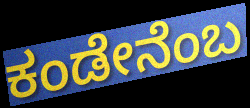
ಕಂಡೇನೆಂಬ